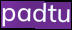
padtu